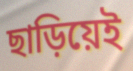
ছাড়িয়েই